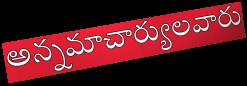
అన్నమాచార్యులవారు